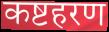
कष्टहरण